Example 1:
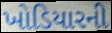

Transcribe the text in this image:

ખોડિયારની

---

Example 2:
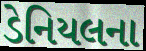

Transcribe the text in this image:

ડેનિયલના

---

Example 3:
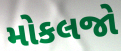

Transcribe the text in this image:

મોકલજો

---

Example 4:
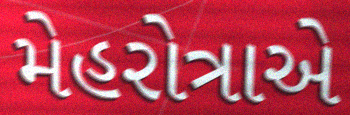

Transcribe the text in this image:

મેહરોત્રાએ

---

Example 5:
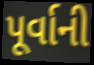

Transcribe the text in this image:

પૂર્વાની